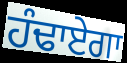
ਹੰਢਾਏਗਾ